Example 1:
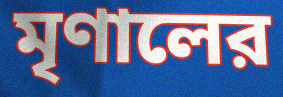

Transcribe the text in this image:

মৃণালের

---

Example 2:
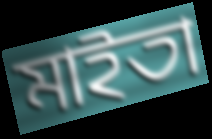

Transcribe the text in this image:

মাইতা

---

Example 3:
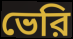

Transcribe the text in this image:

ভেরি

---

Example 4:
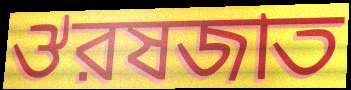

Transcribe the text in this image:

ঔরষজাত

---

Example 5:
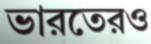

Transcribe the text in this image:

ভারতেরও